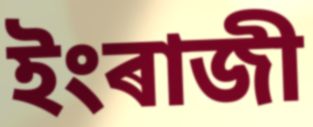
ইংৰাজী